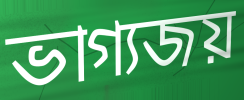
ভাগ্যজয়